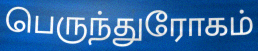
பெருந்துரோகம்